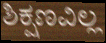
ಶಿಕ್ಷಣವಿಲ್ಲ